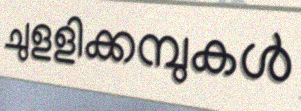
ചുളളിക്കമ്പുകൾ